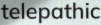
telepathic